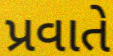
પ્રવાતે